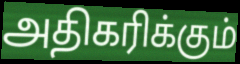
அதிகரிக்கும்